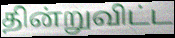
தின்றுவிட்ட